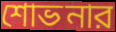
শোভনার